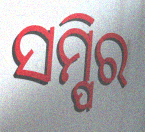
ସମ୍ପିର